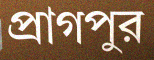
প্রাগপুর